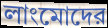
লাংমোদের